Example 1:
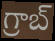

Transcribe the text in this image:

గ్రాబ్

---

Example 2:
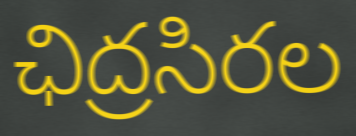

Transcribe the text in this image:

ఛిద్రసిరల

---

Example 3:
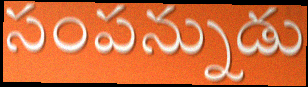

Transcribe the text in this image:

సంపన్నుడు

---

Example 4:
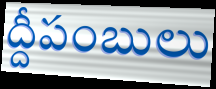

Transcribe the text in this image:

ద్దీపంబులు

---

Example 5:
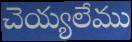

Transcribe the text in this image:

చెయ్యలేము